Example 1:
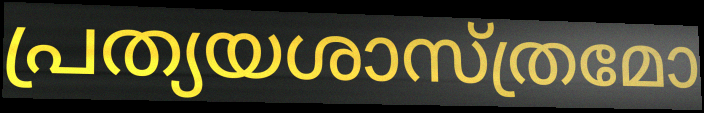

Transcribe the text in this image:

പ്രത്യയശാസ്ത്രമോ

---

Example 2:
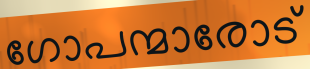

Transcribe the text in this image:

ഗോപന്മാരോട്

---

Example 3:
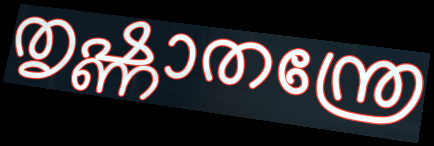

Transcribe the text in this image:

തൃഷ്ണാതന്ത്രേ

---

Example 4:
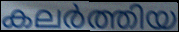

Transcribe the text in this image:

കലർത്തിയ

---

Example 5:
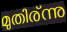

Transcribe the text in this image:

മുതിര്ന്നു